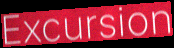
Excursion